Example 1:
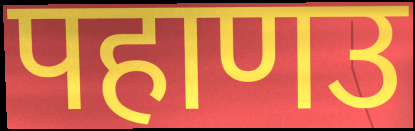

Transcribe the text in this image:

पहाणउ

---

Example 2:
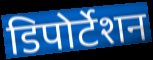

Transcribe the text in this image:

डिपोर्टेशन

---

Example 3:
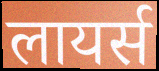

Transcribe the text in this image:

लायर्स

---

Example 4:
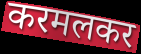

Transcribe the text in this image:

करमलकर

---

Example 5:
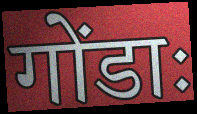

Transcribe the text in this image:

गोंडाः